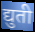
द्युती